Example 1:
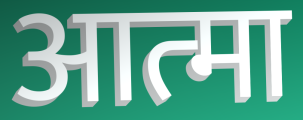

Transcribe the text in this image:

आत्‍मा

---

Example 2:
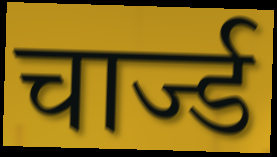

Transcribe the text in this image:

चार्ज्ड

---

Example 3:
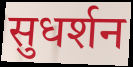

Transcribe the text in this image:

सुधर्शन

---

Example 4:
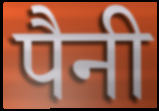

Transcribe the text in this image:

पैनी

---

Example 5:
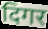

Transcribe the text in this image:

दिगर